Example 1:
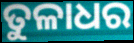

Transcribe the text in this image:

ତୁଳାଧର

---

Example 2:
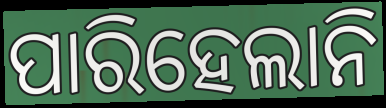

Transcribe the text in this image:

ପାରିହେଲାନି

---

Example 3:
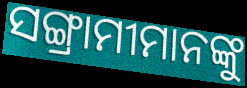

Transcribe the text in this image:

ସଙ୍ଗ୍ରାମୀମାନଙ୍କୁ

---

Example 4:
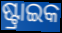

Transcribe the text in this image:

ଷ୍ଟ୍ରାଇକ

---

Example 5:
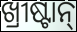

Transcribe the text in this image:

ଖ୍ରୀଷ୍ଟାନ୍